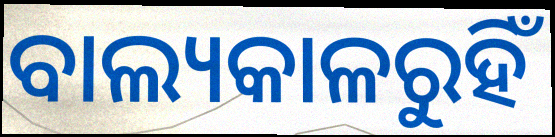
ବାଲ୍ୟକାଳରୁହିଁ